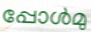
പ്പോൾമു